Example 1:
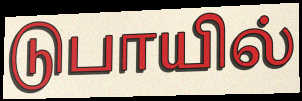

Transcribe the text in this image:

டுபாயில்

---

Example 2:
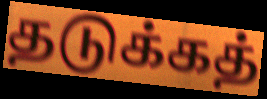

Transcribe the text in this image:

தடுக்கத்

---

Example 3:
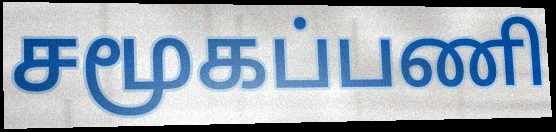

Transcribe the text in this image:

சமூகப்பணி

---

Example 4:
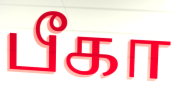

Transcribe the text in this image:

பீகா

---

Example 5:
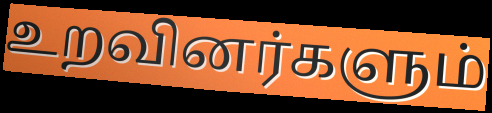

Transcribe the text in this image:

உறவினர்களும்